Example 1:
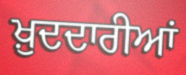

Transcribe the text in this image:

ਖ਼ੁਦਦਾਰੀਆਂ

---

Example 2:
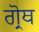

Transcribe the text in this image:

ਗ੍ਰੋਥ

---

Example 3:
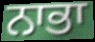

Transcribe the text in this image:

ਨਾਭਾ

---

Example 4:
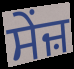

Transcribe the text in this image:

ਸੇਂਜ਼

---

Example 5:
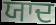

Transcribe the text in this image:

ਯਾਦ